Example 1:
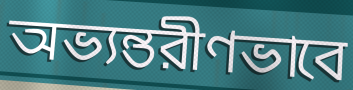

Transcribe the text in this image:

অভ্যন্তরীণভাবে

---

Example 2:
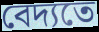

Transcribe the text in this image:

বেদ্যতে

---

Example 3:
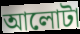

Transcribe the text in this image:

আলোটা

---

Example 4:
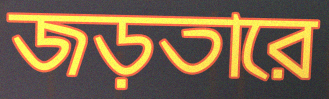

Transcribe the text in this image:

জড়তারে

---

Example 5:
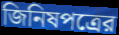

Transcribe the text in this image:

জিনিষপত্রের